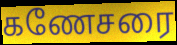
கணேசரை